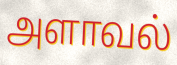
அளாவல்